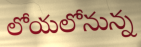
లోయలోనున్న